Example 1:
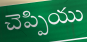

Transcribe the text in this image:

చెప్పియు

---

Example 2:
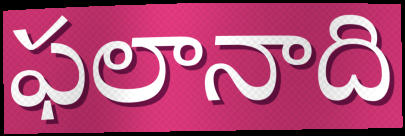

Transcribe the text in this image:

ఫలానాది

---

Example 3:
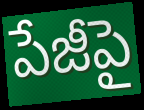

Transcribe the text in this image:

పేజీపై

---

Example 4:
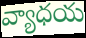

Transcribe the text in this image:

వ్యాధయ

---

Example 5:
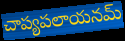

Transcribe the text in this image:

చాప్యపలాయనమ్